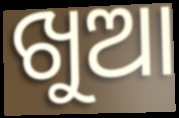
ଖୁଆ